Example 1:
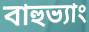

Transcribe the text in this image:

বাহুভ্যাং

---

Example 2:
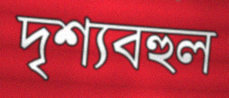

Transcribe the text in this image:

দৃশ্যবহুল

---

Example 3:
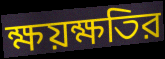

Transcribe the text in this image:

ক্ষয়ক্ষতির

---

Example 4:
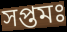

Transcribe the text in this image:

সপ্তমঃ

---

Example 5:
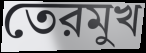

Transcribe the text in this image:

তেরমুখ